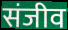
संजीव